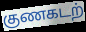
குணகடற்